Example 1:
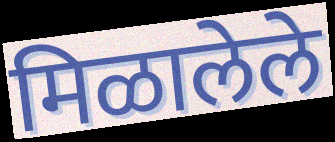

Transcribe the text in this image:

मिळालेले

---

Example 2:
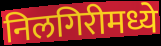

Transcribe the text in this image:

निलगिरीमध्ये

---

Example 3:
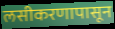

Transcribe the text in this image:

लसीकरणापासून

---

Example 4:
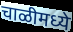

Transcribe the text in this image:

चाळीमध्ये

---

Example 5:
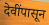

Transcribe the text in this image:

देवींपासून